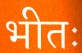
भीतः